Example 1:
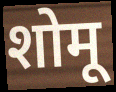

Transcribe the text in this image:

शोमू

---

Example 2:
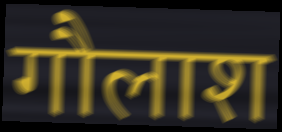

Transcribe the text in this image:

गौलाश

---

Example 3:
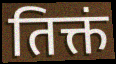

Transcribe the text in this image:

तिक्तं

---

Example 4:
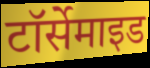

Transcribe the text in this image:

टॉर्सेमाइड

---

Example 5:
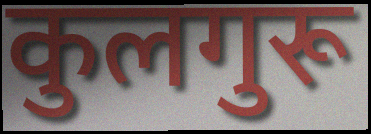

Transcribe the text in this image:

कुलगुरू